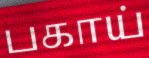
பகாய்